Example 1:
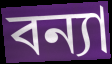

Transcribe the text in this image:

বন্যা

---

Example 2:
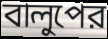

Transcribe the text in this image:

বালুপের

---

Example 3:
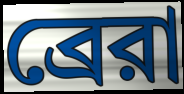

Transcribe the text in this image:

ব্রেরা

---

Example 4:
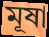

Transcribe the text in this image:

মূষা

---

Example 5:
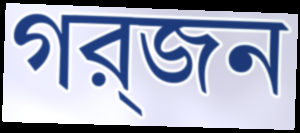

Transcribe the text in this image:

গর্‍জন